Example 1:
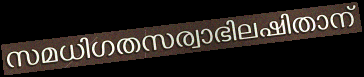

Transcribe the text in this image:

സമധിഗതസര്വാഭിലഷിതാന്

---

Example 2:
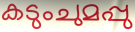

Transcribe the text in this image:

കടുംചുമപ്പു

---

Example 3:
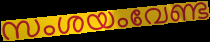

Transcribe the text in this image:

സംശയംവേണ്ട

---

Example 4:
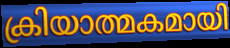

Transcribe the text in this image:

ക്രിയാത്മകമായി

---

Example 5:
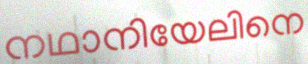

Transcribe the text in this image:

നഥാനിയേലിനെ